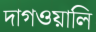
দাগওয়ালি